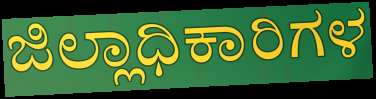
ಜಿಲ್ಲಾಧಿಕಾರಿಗಳ